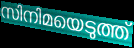
സിനിമയെടുത്ത്